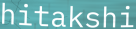
hitakshi